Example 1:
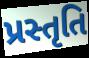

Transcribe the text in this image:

પ્રસ્તૃતિ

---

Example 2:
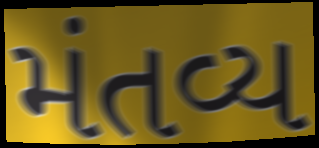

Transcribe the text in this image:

મંતવ્ય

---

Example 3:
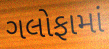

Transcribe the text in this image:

ગલોફામાં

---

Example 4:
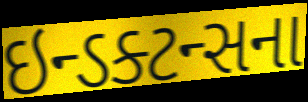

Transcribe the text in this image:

ઇન્ડક્ટન્સના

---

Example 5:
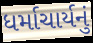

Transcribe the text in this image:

ધર્માચાર્યનું